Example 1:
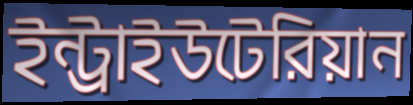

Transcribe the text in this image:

ইন্ট্রাইউটেরিয়ান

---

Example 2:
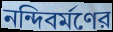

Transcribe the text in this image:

নন্দিবর্মণের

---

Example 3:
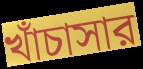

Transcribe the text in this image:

খাঁচাসার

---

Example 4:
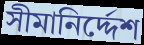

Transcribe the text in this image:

সীমানির্দ্দেশ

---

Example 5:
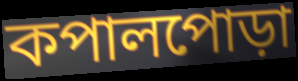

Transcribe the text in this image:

কপালপোড়া